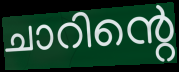
ചാറിന്റെ